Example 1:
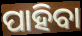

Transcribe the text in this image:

ପାହିବା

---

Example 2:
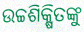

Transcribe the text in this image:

ଉଚ୍ଚଶିକ୍ଷିତଙ୍କୁ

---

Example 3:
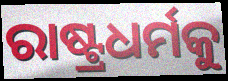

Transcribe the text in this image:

ରାଷ୍ଟ୍ରଧର୍ମକୁ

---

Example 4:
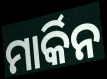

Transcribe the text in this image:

ମାର୍କିନ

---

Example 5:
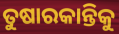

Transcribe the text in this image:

ତୁଷାରକାନ୍ତିକୁ